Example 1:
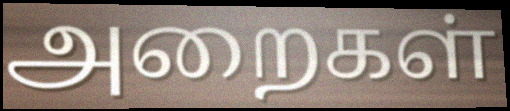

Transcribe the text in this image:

அறைகள்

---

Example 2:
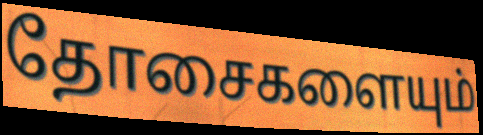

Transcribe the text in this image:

தோசைகளையும்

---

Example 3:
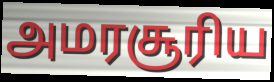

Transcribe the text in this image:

அமரசூரிய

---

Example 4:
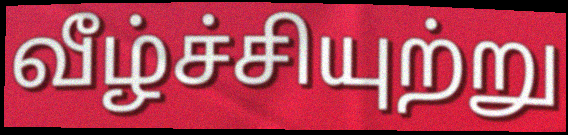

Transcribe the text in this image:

வீழ்ச்சியுற்று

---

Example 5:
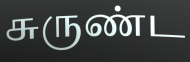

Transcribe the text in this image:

சுருண்ட